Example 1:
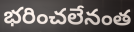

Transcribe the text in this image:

భరించలేనంత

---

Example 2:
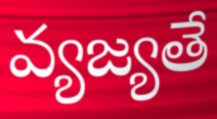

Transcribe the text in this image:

వ్యజ్యతే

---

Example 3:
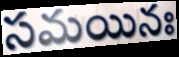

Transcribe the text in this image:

సమయినః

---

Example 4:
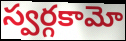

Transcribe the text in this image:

స్వర్గకామో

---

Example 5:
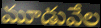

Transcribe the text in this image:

మూడువేల